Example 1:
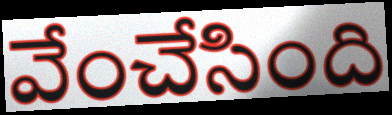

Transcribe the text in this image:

వేంచేసింది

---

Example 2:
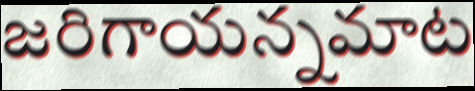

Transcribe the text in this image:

జరిగాయన్నమాట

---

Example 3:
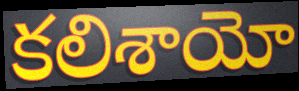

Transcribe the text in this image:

కలిశాయో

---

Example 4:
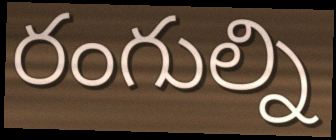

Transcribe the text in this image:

రంగుల్ని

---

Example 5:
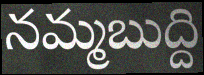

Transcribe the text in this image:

నమ్మబుద్ది